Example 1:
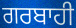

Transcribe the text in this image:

ਗਰਬਾਹੀ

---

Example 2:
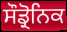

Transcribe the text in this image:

ਸੌਡ੍ਰੋਨਿਕ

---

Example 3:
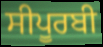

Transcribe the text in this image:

ਸੀਪੂਰਬੀ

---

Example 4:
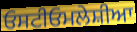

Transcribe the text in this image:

ਓਸਟੀਓਮਲੇਸ਼ੀਆ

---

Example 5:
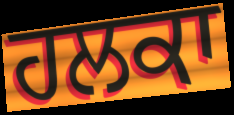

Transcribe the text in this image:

ਹਲਕਾ